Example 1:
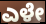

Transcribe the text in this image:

ಎಳೇ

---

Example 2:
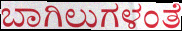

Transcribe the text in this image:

ಬಾಗಿಲುಗಳಂತೆ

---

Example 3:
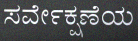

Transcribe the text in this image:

ಸರ್ವೇಕ್ಷಣೆಯ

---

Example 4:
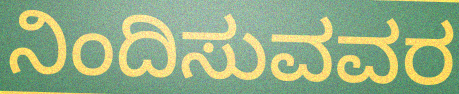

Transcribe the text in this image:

ನಿಂದಿಸುವವರ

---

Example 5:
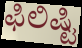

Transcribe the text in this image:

ಫಿಲಿಷ್ಟಿ